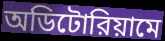
অডিটোরিয়ামে